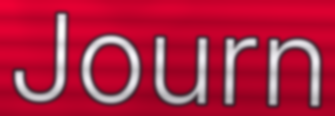
Journ